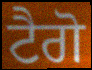
ਟੈਗੋ